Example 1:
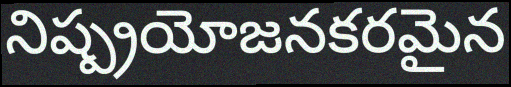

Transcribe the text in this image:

నిష్ప్రయోజనకరమైన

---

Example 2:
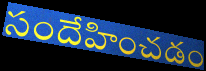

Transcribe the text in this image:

సందేహించడం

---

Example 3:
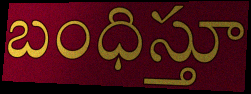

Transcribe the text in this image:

బంధిస్తూ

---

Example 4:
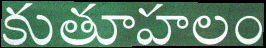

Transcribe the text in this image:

కుతూహలం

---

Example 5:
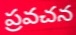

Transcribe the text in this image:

ప్రవచన